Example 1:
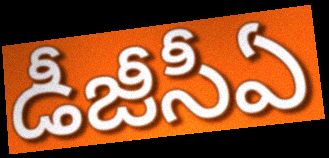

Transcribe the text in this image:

డీజీసీఏ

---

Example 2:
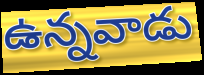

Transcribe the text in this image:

ఉన్నవాడు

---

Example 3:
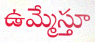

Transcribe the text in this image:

ఉమ్మేస్తూ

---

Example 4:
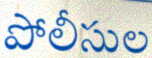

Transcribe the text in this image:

పోలీసుల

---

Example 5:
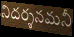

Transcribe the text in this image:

నిదర్శనమనీ